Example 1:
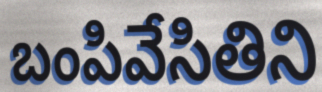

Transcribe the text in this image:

బంపివేసితిని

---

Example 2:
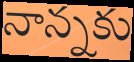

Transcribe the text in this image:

నాన్నకు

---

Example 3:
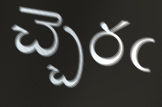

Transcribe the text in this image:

చ్చెరఁ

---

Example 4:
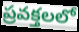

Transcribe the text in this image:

ప్రవక్తలలో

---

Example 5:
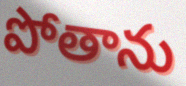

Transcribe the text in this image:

పోతాను